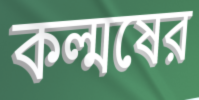
কল্মষের